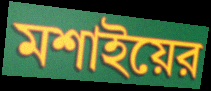
মশাইয়ের